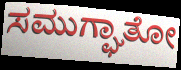
ಸಮುಗ್ಘಾತೋ